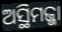
ଅସ୍ଥିମଜ୍ଜା